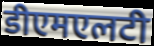
डीएमएलटी